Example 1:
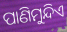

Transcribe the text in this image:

ପାଣିମୁନ୍ଦିଏ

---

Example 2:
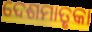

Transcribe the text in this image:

ଦେଶମାତୃକା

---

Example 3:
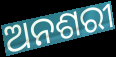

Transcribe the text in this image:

ଅନଶରୀ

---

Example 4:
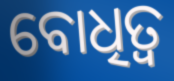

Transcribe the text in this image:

ବୋଧିତ୍ୱ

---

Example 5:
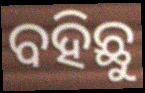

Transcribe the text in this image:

ବହିଛୁ